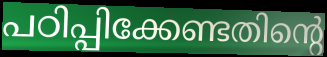
പഠിപ്പിക്കേണ്ടതിന്റെ